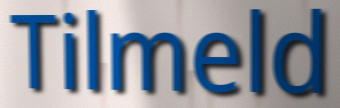
Tilmeld